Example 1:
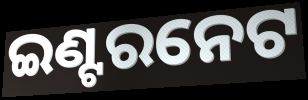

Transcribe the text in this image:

ଇଣ୍ଟରନେଟ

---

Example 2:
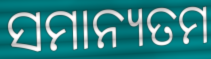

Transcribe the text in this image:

ସମାନ୍ୟତମ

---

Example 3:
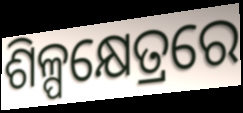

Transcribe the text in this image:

ଶିଳ୍ପକ୍ଷେତ୍ରରେ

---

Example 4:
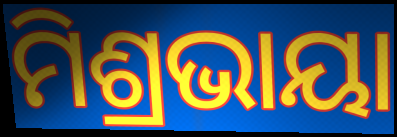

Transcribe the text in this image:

ମିଶ୍ରଭାୟା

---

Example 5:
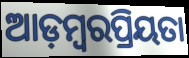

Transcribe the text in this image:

ଆଡ଼ମ୍ବରପ୍ରିୟତା